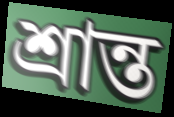
শ্রান্ত